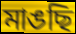
মাঙছি